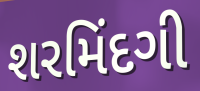
શરમિંદગી